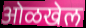
ओळखेल